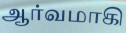
ஆர்வமாகி